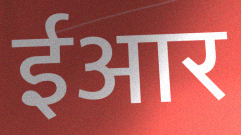
ईआर